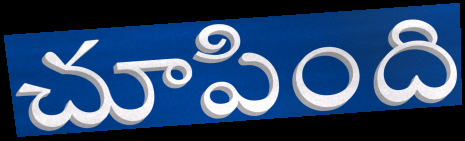
చూపింది